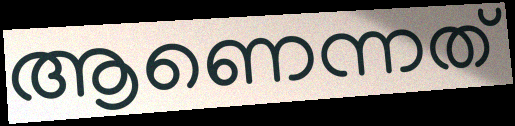
ആണെന്നത്